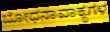
ಬೋಧನಾವಾಕ್ಯಗಳ